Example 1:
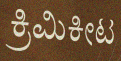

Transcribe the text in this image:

ಕ್ರಿಮಿಕೀಟ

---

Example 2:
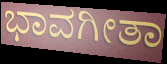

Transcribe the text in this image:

ಭಾವಗೀತಾ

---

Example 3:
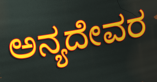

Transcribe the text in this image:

ಅನ್ಯದೇವರ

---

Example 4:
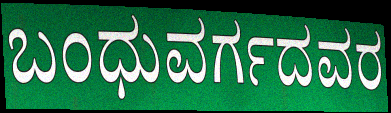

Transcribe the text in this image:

ಬಂಧುವರ್ಗದವರ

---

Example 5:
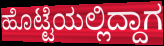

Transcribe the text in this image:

ಹೊಟ್ಟೆಯಲ್ಲಿದ್ದಾಗ